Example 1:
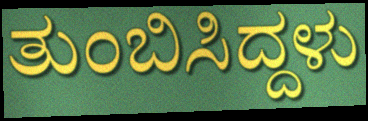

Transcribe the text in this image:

ತುಂಬಿಸಿದ್ದಳು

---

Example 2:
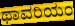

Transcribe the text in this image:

ಥಾವರಿಯಂ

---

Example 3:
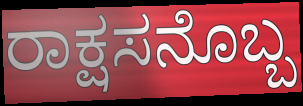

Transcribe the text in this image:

ರಾಕ್ಷಸನೊಬ್ಬ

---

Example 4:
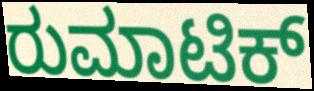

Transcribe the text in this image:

ರುಮಾಟಿಕ್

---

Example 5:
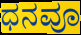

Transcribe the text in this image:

ಧನವೂ